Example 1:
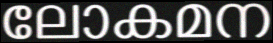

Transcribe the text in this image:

ലോകമന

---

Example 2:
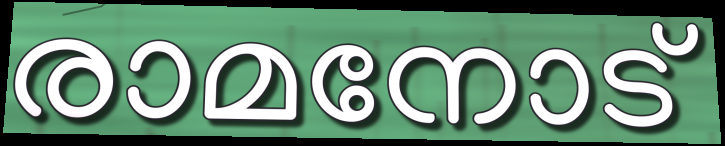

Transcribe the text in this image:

രാമനോട്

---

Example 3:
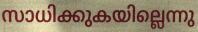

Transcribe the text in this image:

സാധിക്കുകയില്ലെന്നു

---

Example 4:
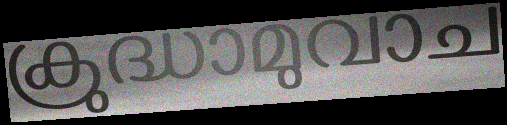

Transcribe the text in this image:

ക്രുദ്ധാമുവാച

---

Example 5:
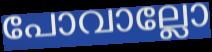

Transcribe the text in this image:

പോവാല്ലോ